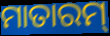
ମାତାରମ୍